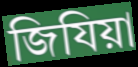
জিযিয়া